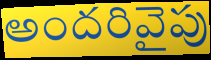
అందరివైపు